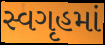
સ્વગૃહમાં